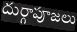
దుర్గాపూజలు